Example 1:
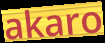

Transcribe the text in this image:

akaro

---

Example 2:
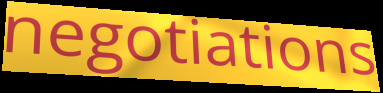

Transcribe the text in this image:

negotiations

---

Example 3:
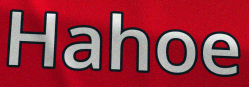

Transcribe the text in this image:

Hahoe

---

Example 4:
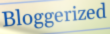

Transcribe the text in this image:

Bloggerized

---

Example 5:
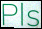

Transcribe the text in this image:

Pls